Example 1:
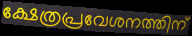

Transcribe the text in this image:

ക്ഷേത്രപ്രവേശനത്തിന്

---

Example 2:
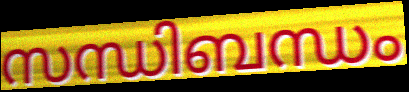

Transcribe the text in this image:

സന്ധിബന്ധം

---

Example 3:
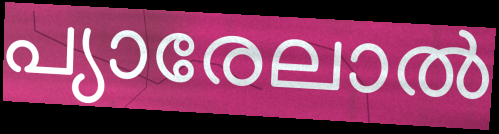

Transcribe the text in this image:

പ്യാരേലാൽ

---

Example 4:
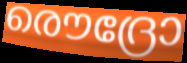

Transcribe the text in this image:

രൌദ്രോ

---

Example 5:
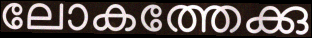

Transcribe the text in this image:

ലോകത്തേക്കു